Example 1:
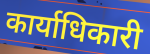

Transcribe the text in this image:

कार्याधिकारी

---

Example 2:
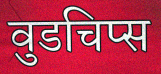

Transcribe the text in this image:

वुडचिप्स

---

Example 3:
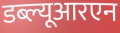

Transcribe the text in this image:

डब्ल्यूआरएन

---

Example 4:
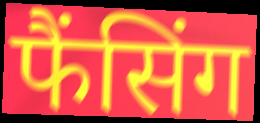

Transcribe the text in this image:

फैंसिंग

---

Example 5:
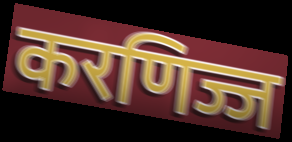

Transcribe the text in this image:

करणिज्ज